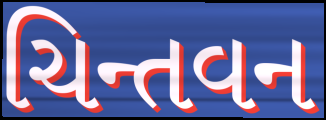
ચિન્તવન